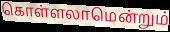
கொள்ளலாமென்றும்